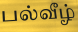
பல்வீழ்